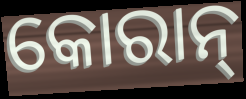
କୋରାନ୍